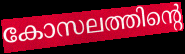
കോസലത്തിന്റെ